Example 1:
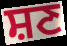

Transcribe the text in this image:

ਸ਼ਣ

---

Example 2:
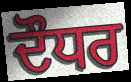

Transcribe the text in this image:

ਦੌਧਰ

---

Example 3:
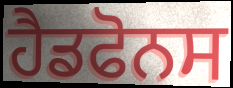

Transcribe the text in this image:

ਹੈਡਫੋਨਸ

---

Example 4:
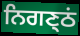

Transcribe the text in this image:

ਨਿਗਣ੍ਠਂ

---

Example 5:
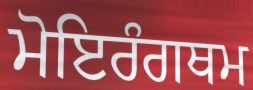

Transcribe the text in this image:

ਮੋਇਰੰਗਥਮ